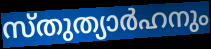
സ്തുത്യാർഹനും